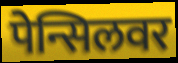
पेन्सिलवर